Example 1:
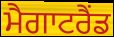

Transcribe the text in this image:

ਮੈਗਾਟਰੈਂਡ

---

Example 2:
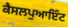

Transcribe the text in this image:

ਕੈਸਲਪੁਆਇੰਟ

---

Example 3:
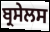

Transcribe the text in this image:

ਬ੍ਰਸੇਲਸ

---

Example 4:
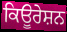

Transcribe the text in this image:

ਕਿਊਰੇਸ਼ਨ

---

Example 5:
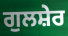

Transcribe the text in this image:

ਗੁਲਸ਼ੇਰ